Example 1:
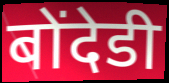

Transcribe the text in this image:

बोंदेडी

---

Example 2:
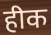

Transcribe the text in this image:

हीक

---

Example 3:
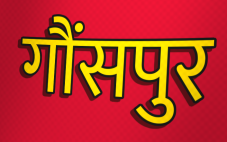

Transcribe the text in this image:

गौंसपुर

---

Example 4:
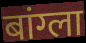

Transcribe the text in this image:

बांग्‍ला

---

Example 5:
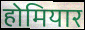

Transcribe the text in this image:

होमियार